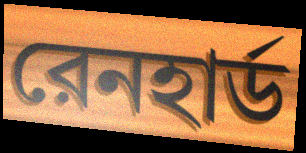
রেনহার্ড